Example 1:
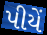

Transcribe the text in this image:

પીયેં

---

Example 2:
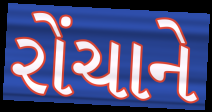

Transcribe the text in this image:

રોંચાને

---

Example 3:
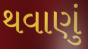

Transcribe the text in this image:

થવાણું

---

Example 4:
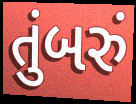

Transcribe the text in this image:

તુંબરું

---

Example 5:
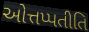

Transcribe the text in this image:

ઓત્તપ્પતીતિ